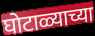
घोटाळ्याच्या